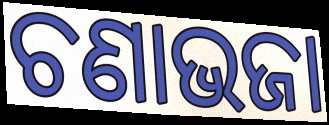
ଚଣାଭଜା